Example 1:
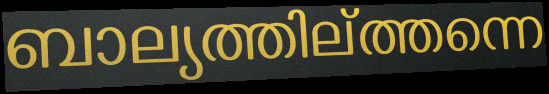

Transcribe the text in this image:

ബാല്യത്തില്ത്തന്നെ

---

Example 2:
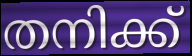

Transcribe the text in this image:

തനിക്ക്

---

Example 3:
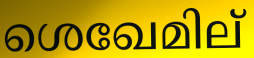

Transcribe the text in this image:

ശെഖേമില്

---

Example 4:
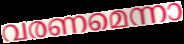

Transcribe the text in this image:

വരണമെന്നാ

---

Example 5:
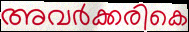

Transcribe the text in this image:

അവർക്കരികെ